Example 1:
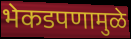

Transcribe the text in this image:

भेकडपणामुळे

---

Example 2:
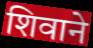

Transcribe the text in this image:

शिवाने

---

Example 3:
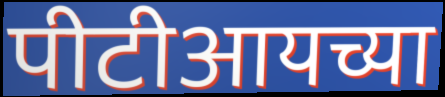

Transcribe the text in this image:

पीटीआयच्या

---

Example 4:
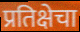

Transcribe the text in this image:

प्रतिक्षेचा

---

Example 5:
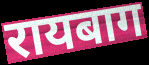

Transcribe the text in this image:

रायबाग